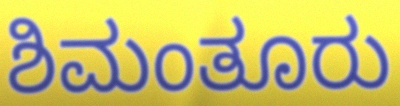
ಶಿಮಂತೂರು